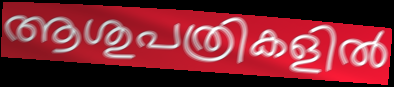
ആശുപത്രികളിൽ